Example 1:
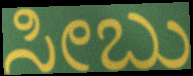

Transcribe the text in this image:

ಸೀಬು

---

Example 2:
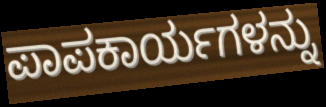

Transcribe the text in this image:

ಪಾಪಕಾರ್ಯಗಳನ್ನು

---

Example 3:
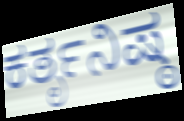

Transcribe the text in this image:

ಕರ್ತೃನಿಷ್ಠ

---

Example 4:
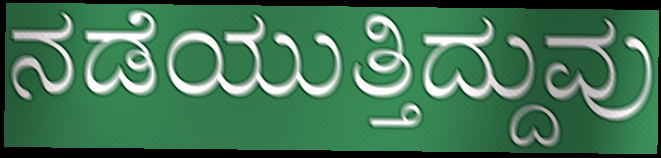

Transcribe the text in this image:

ನಡೆಯುತ್ತಿದ್ದುವು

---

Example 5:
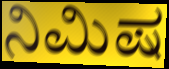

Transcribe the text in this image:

ನಿಮಿಷ